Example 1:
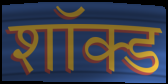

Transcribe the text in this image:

शॉक्ड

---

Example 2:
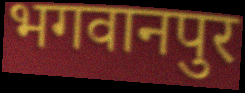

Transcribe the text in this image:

भगवानपुर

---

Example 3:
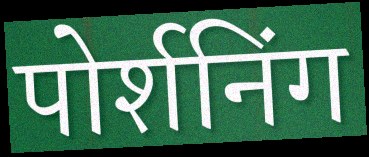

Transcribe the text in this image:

पोर्शनिंग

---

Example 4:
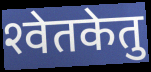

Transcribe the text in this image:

श्वेतकेतु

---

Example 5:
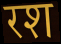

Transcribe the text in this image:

रश